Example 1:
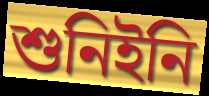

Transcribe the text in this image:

শুনিইনি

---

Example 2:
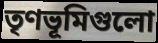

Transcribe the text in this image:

তৃণভূমিগুলো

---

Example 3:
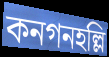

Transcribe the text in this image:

কনগনহল্লি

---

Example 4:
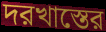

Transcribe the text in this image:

দরখাস্তের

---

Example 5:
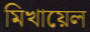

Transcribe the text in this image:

মিখায়েল